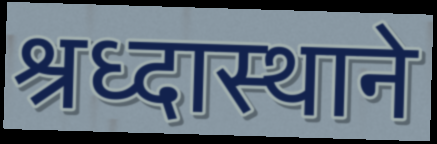
श्रध्दास्थाने